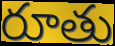
రూతు